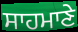
ਸਾਹਮਾਣੇ